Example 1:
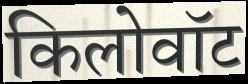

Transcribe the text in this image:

किलोवॉट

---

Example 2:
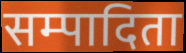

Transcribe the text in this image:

सम्पादिता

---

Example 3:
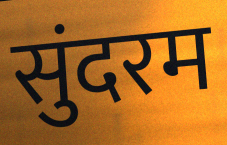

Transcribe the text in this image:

सुंदरम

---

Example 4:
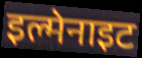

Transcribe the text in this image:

इल्मेनाइट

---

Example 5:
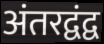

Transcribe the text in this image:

अंतरद्वंद्व